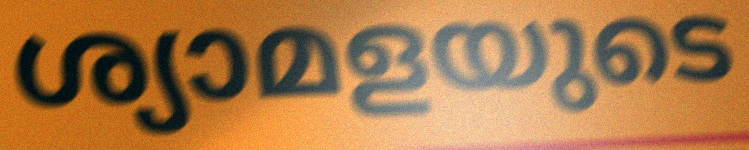
ശ്യാമളയുടെ